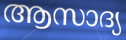
ആസാദ്യ